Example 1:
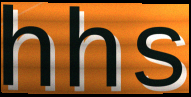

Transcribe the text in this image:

hhs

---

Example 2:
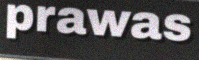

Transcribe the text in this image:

prawas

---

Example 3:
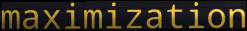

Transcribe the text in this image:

maximization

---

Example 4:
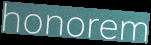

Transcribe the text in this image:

honorem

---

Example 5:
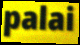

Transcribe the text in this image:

palai